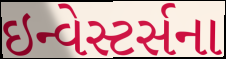
ઇન્વેસ્ટર્સના